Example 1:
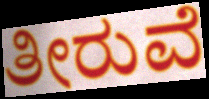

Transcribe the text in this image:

ತೀರುವೆ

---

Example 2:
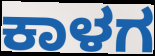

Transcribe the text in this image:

ಕಾಳಗ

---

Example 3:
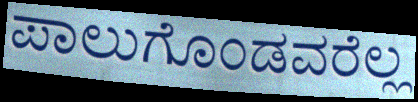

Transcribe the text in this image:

ಪಾಲುಗೊಂಡವರೆಲ್ಲ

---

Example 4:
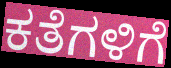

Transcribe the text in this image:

ಕತೆಗಳಿಗೆ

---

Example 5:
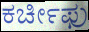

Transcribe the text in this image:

ಕರ್ಚೀಫು